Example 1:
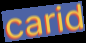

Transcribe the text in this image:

carid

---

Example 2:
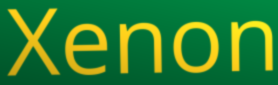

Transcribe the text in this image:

Xenon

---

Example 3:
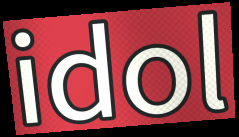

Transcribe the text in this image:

idol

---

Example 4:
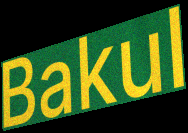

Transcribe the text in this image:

Bakul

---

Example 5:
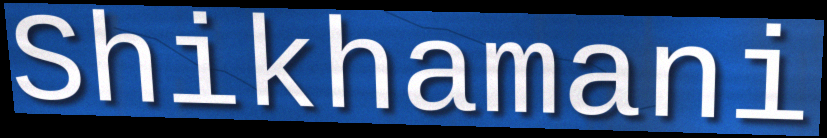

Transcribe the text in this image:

Shikhamani